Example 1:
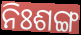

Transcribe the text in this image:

ନିଃଶଙ୍ଗ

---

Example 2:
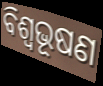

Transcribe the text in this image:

ବିଶ୍ୱଭୂଷଣ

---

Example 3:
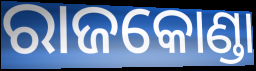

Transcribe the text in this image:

ରାଜକୋଣ୍ଡା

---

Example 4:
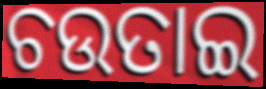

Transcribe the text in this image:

ଚଉତାଇ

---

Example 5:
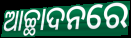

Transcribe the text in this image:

ଆଚ୍ଛାଦନରେ